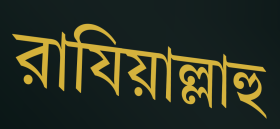
রাযিয়াল্লাহু